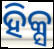
ହିକ୍ସ